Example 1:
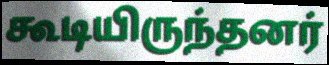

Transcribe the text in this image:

கூடியிருந்தனர்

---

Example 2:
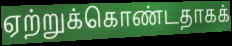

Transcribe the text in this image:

ஏற்றுக்கொண்டதாகக்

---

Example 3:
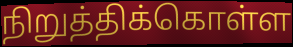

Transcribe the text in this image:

நிறுத்திக்கொள்ள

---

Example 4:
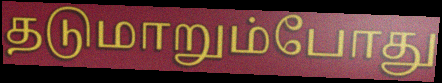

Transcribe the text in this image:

தடுமாறும்போது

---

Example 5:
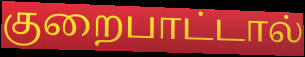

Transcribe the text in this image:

குறைபாட்டால்